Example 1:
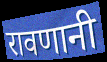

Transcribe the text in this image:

रावणानी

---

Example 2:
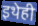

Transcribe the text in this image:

इथेही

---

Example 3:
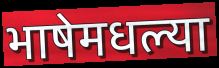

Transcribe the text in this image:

भाषेमधल्या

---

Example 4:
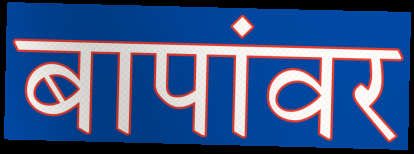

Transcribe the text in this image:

बापांवर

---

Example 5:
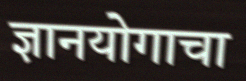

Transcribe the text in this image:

ज्ञानयोगाचा